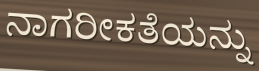
ನಾಗರೀಕತೆಯನ್ನು